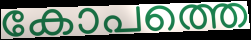
കോപത്തെ